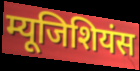
म्यूजिशियंस